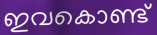
ഇവകൊണ്ട്